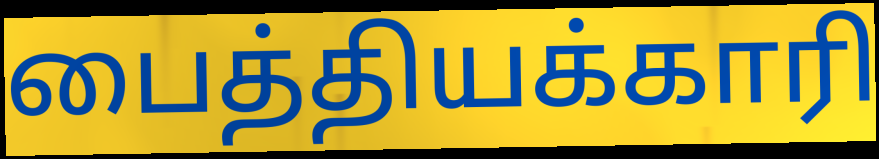
பைத்தியக்காரி